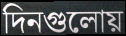
দিনগুলোয়